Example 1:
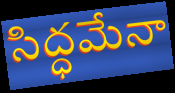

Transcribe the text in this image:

సిద్ధమేనా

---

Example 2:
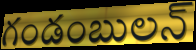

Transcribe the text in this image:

గండంబులన్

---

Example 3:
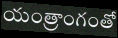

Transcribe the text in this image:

యంత్రాంగంతో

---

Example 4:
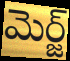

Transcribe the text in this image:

మెర్జ్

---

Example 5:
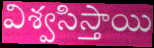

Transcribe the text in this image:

విశ్వసిస్తాయి